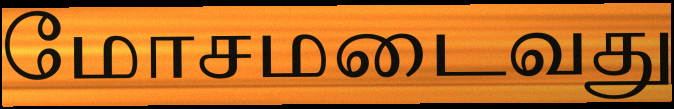
மோசமடைவது